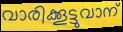
വാരിക്കൂട്ടുവാന്